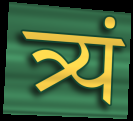
त्र्यं